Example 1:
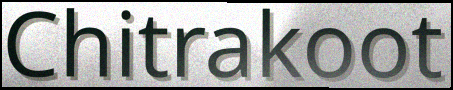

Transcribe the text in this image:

Chitrakoot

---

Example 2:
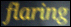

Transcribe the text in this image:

flaring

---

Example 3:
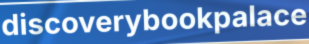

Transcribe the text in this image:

discoverybookpalace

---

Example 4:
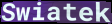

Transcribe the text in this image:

Swiatek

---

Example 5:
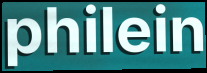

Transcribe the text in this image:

philein